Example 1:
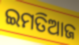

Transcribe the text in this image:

ଇମତିଆଜ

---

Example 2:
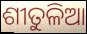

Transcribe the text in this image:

ଶୀତୁଳିଆ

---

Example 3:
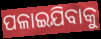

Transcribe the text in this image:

ପଳାଇଯିବାକୁ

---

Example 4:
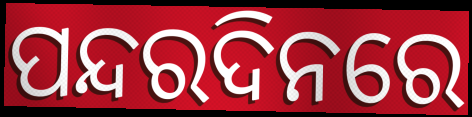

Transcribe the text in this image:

ପନ୍ଦରଦିନରେ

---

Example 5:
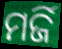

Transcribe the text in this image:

ମର୍ଜି